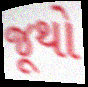
જૂથો